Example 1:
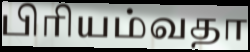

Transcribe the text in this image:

பிரியம்வதா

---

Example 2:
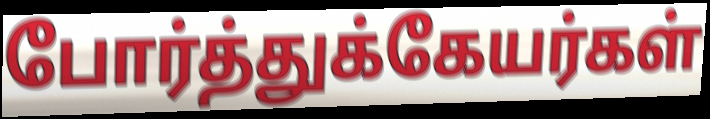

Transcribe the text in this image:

போர்த்துக்கேயர்கள்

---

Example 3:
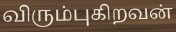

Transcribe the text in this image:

விரும்புகிறவன்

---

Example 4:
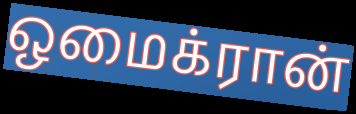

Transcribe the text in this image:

ஒமைக்ரான்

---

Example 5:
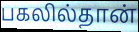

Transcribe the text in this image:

பகலில்தான்